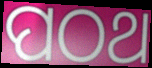
ପଠଥ